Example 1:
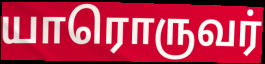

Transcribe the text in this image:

யாரொருவர்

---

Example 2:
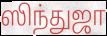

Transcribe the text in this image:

ஸிந்துஜா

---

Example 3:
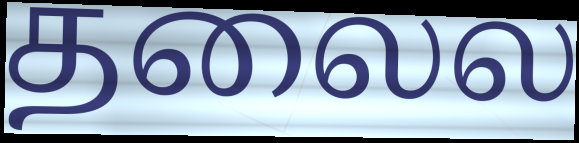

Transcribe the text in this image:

தலைல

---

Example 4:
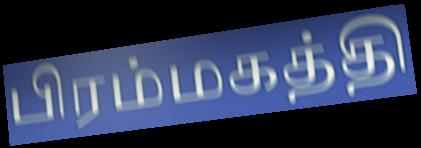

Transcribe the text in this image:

பிரம்மகத்தி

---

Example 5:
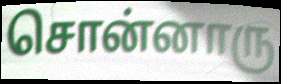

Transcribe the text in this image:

சொன்னாரு